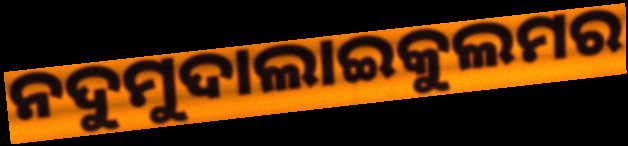
ନଦୁମୁଦାଲାଇକୁଲମର